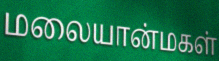
மலையான்மகள்